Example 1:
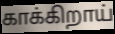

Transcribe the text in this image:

காக்கிறாய்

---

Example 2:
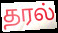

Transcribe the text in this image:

தரல்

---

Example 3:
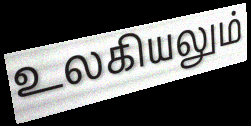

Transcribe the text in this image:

உலகியலும்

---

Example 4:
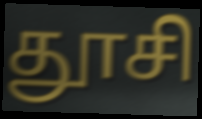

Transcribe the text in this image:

தூசி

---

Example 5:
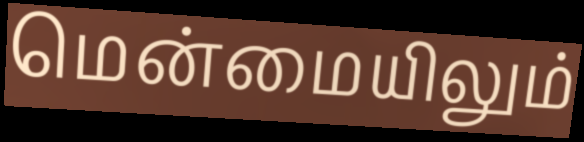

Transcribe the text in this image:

மென்மையிலும்